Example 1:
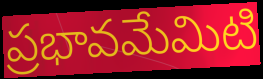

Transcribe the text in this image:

ప్రభావమేమిటి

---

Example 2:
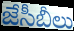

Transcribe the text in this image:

జేసీబీలు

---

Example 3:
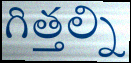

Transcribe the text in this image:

గిత్తల్ని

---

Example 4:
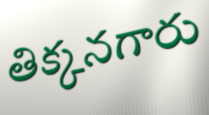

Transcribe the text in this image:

తిక్కనగారు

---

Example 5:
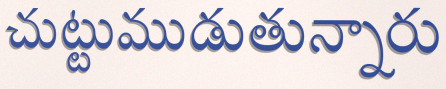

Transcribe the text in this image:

చుట్టుముడుతున్నారు